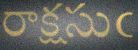
రాక్షసుఁ